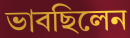
ভাবছিলেন